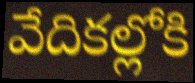
వేదికల్లోకి